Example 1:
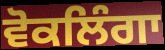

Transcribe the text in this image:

ਵੋਕਲਿੰਗਾ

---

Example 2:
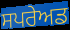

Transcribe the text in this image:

ਸਪਰੇਅਡ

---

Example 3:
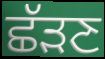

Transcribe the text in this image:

ਛੱੜਣ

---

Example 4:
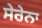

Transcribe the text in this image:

ਸੇਰੇਨਾ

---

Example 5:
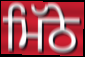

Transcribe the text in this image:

ਮਿੱਠੇ